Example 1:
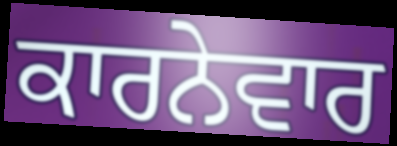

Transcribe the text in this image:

ਕਾਰਨੇਵਾਰ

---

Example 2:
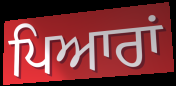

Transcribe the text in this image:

ਪਿਆਰਾਂ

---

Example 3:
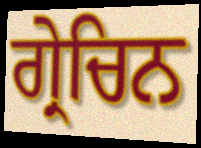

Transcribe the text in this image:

ਗ੍ਰੇਚਿਨ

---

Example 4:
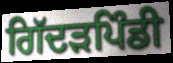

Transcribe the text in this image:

ਗਿੱਦੜਪਿੰਡੀ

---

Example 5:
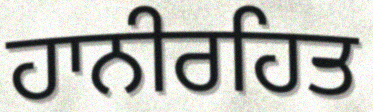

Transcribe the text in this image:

ਹਾਨੀਰਹਿਤ